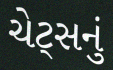
ચેટ્સનું